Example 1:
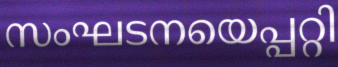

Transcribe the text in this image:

സംഘടനയെപ്പറ്റി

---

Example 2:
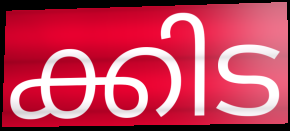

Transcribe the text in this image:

ക്കിട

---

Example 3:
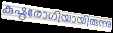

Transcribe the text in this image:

കുഷ്ഠരോഗിയായിരുന്നു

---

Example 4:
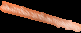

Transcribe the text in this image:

കൺവെൻഷനുകളിലും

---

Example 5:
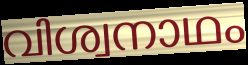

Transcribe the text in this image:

വിശ്വനാഥം